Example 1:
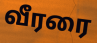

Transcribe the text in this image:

வீரரை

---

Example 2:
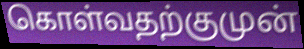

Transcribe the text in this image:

கொள்வதற்குமுன்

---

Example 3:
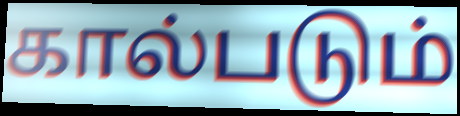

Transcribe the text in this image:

கால்படும்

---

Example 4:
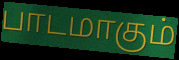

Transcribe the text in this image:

பாடமாகும்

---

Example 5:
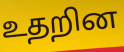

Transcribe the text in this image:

உதறின